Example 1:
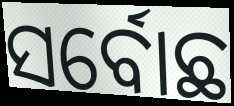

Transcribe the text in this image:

ସର୍ବୋଛ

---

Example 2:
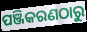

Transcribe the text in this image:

ପଞ୍ଜିକରଣଠାରୁ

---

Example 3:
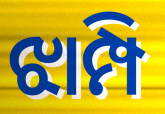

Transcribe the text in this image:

ଝାମ୍ପି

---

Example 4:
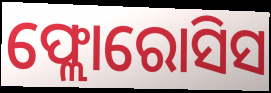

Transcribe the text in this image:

ଫ୍ଲୋରୋସିସ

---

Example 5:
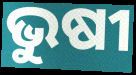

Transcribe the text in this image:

ଭୁଷୀ